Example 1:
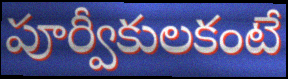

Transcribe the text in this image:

పూర్వీకులకంటే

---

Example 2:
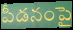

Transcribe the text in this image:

పీడనంపై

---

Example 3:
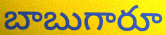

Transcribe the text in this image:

బాబుగారూ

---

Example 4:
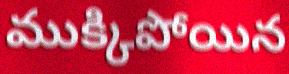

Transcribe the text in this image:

ముక్కిపోయిన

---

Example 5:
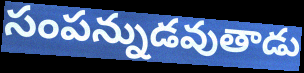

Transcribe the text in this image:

సంపన్నుడవుతాడు